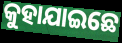
କୁହାଯାଇଛେ